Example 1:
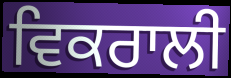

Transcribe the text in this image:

ਵਿਕਰਾਲੀ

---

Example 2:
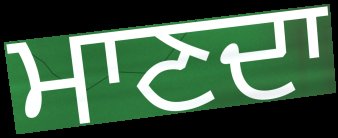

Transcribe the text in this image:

ਮਾਣਦਾ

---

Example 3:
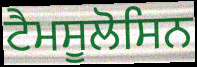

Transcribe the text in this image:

ਟੈਮਸੂਲੋਸਿਨ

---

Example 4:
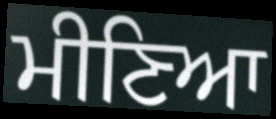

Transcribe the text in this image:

ਮੀਣਿਆ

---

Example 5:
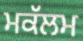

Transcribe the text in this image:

ਮਕੱਲਮ